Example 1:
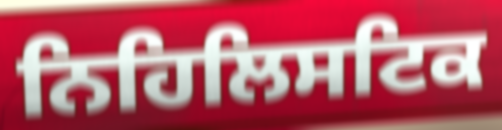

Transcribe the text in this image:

ਨਿਹਿਲਿਸਟਿਕ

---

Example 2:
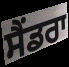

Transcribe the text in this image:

ਸੈਂਡਰਾ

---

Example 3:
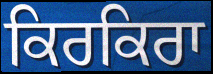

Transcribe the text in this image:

ਕਿਰਕਿਰਾ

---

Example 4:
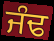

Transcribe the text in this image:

ਜੰਢ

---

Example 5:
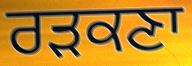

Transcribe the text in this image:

ਰੜਕਣਾ